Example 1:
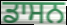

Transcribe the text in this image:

ਡਾਸਨ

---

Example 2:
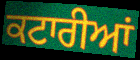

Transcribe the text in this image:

ਕਟਾਰੀਆਂ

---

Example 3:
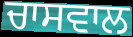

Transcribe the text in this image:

ਚਾਸਵਾਲ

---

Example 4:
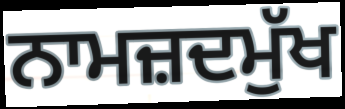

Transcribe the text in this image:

ਨਾਮਜ਼ਦਮੁੱਖ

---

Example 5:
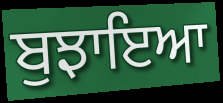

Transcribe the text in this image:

ਬੁਝਾਇਆ